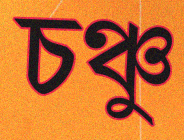
চঞ্চু